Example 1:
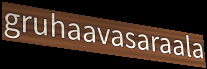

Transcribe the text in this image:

gruhaavasaraala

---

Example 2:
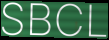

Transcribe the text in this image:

SBCL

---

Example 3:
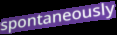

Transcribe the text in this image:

spontaneously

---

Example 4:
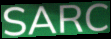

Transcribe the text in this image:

SARC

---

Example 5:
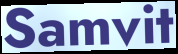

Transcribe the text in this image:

Samvit